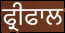
ਫ੍ਰੀਫਾਲ